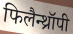
फिलैन्थ्रॉपी